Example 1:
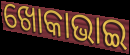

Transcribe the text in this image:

ଖୋକାଭାଇ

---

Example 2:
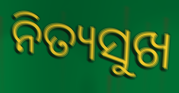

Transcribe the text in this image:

ନିତ୍ୟସୁଖ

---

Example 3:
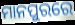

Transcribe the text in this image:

ମାନପୁରରେ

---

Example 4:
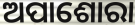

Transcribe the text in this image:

ଅପାଶୋରା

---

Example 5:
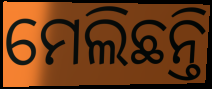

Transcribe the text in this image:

ମେଲିଛନ୍ତି